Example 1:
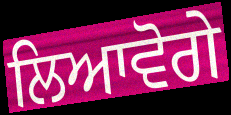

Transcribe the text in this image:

ਲਿਆਵੋਗੇ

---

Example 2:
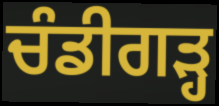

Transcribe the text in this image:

ਚੰਡੀਗੜ੍ਹ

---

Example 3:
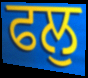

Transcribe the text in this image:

ਫਲੁ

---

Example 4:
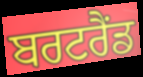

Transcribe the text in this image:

ਬਰਟਰੈਂਡ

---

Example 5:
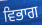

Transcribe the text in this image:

ਵਿਭਾਗ